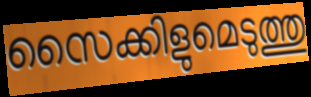
സൈക്കിളുമെടുത്തു